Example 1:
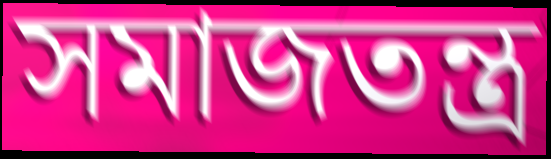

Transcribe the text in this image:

সমাজতন্ত্র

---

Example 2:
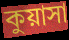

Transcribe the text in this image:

কুয়াসা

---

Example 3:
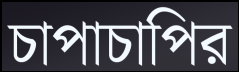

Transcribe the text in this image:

চাপাচাপির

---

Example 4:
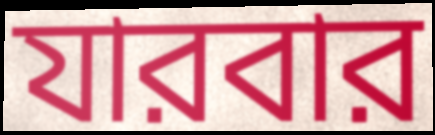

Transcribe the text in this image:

যারবার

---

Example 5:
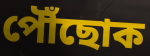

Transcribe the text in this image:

পৌঁছোক